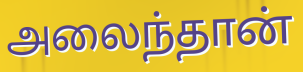
அலைந்தான்